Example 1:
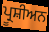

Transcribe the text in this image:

ਪ੍ਰੂਸ਼ੀਅਨ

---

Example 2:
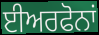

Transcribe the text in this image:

ਈਅਰਫੋਨਾਂ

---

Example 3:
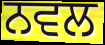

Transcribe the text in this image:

ਨਵਲ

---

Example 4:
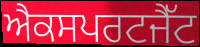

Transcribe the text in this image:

ਐਕਸਪਰਟਜੈੱਟ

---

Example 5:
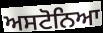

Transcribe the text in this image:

ਅਸਟੋਨਿਆ